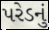
પરેડનું